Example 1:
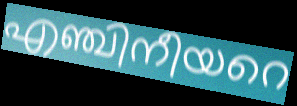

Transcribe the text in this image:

എഞ്ചിനീയറെ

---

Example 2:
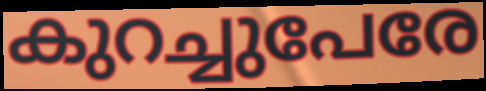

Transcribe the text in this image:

കുറച്ചുപേരേ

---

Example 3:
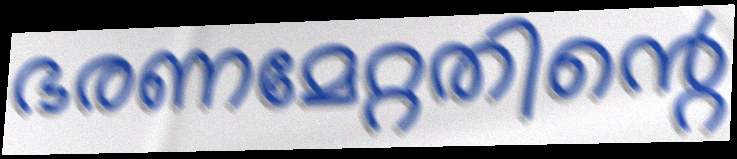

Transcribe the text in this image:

ഭരണമേറ്റതിന്റെ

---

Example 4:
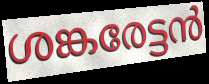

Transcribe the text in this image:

ശങ്കരേട്ടൻ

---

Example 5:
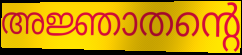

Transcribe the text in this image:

അജ്ഞാതന്റെ